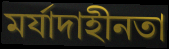
মর্যাদাহীনতা